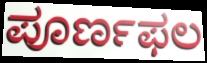
ಪೂರ್ಣಫಲ